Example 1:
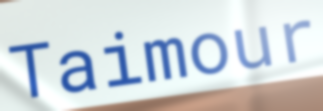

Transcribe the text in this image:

Taimour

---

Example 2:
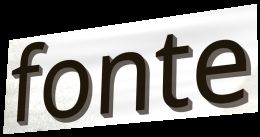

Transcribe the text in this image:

fonte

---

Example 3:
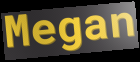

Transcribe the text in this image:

Megan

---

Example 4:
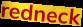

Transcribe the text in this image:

redneck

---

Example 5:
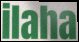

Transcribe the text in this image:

ilaha